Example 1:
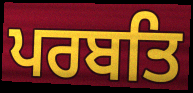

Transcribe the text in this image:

ਪਰਬਤਿ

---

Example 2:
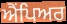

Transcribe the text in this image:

ਐਂਪਿਅਰ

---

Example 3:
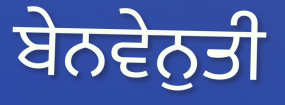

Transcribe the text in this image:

ਬੇਨਵੇਨੁਤੀ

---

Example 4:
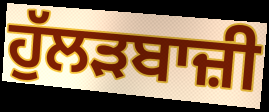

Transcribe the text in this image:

ਹੁੱਲੜਬਾਜ਼ੀ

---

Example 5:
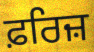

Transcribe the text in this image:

ਫ਼ਰਿਜ਼